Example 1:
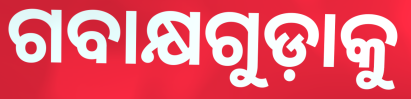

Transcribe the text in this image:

ଗବାକ୍ଷଗୁଡ଼ାକୁ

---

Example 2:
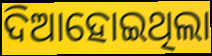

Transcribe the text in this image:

ଦିଆହୋଇଥିଲା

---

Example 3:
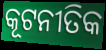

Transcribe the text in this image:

କୂଟନୀତିକ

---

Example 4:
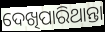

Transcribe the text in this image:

ଦେଖିପାରିଥାନ୍ତା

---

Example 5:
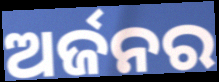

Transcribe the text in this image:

ଅର୍ଜନର